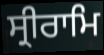
ਸ੍ਰੀਰਾਮਿ